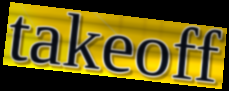
takeoff